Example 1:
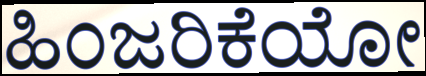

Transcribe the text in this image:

ಹಿಂಜರಿಕೆಯೋ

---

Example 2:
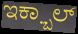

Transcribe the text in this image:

ಇಕ಼್ಬಾಲ್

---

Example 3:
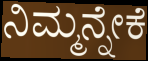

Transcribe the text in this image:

ನಿಮ್ಮನ್ನೇಕೆ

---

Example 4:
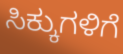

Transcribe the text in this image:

ಸಿಕ್ಕುಗಳಿಗೆ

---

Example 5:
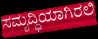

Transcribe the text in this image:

ಸಮೃದ್ಧಿಯಾಗಿರಲಿ